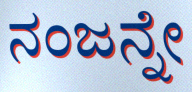
ನಂಜನ್ನೇ